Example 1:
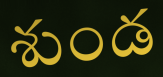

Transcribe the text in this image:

శుండ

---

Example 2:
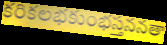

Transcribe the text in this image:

కరికలభకుంభస్తననతా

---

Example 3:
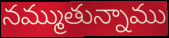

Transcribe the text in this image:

నమ్ముతున్నాము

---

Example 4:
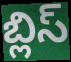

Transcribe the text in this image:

బ్లిస్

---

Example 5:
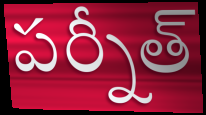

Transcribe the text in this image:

పర్నీత్